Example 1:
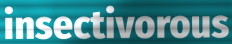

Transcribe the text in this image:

insectivorous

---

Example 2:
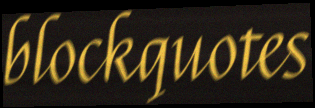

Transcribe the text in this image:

blockquotes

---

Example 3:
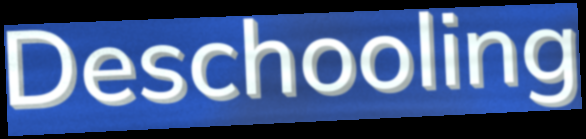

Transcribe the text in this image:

Deschooling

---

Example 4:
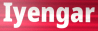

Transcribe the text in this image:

Iyengar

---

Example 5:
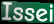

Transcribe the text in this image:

Issei